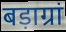
बड़ाग्रां